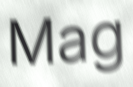
Mag